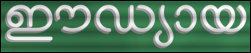
ഈഡ്യായ